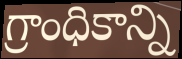
గ్రాంధికాన్ని